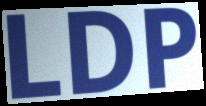
LDP